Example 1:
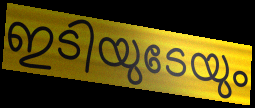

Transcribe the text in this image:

ഇടിയുടേയും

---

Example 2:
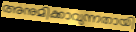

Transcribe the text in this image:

അനുമിക്കാവുന്നതായി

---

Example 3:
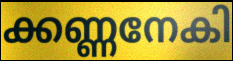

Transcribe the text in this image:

ക്കണ്ണനേകി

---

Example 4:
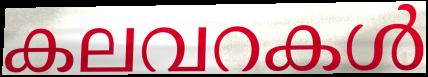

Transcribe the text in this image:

കലവറകൾ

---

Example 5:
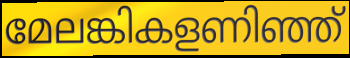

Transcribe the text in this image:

മേലങ്കികളണിഞ്ഞ്